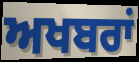
ਅਖਬਰਾਂ